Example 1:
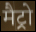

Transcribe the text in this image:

मैट्रो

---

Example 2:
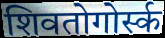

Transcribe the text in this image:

शिवतोगोर्स्क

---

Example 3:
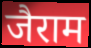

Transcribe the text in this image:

जैराम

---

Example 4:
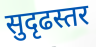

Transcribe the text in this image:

सुदृढस्तर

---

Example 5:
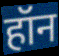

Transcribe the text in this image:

हॉन